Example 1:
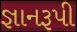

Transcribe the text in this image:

જ્ઞાનરૂપી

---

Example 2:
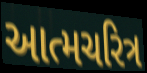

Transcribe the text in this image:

આત્મચરિત્ર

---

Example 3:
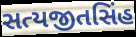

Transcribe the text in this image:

સત્યજીતસિંહ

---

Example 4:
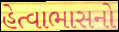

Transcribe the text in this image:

હેત્વાભાસનો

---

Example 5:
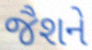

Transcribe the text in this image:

જૈશને